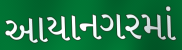
આયાનગરમાં